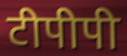
टीपीपी